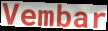
Vembar